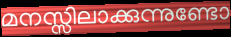
മനസ്സിലാക്കുന്നുണ്ടോ